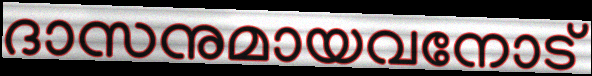
ദാസനുമായവനോട്